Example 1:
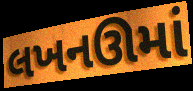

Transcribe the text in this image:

લખનઊમાં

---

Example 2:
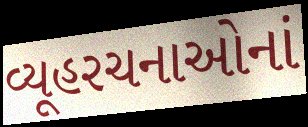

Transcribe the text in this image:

વ્યૂહરચનાઓનાં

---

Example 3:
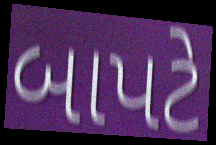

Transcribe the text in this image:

બાપટે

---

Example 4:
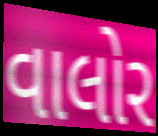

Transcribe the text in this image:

વાલોર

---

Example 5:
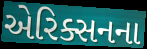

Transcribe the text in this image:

એરિક્સનના